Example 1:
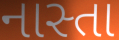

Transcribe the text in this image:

નાસ્તા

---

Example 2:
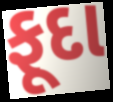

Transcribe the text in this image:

ફૂદા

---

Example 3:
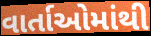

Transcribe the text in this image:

વાર્તાઓમાંથી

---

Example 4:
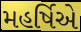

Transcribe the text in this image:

મહર્ષિએ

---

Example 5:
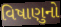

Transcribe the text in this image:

વિષાણુનો